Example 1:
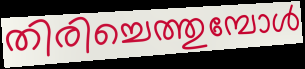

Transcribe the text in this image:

തിരിച്ചെത്തുമ്പോൾ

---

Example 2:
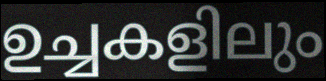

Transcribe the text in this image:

ഉച്ചകളിലും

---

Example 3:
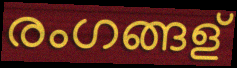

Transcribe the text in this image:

രംഗങ്ങള്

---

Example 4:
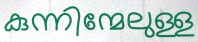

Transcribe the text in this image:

കുന്നിന്മേലുള്ള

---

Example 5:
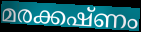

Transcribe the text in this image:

മരക്കഷ്ണം